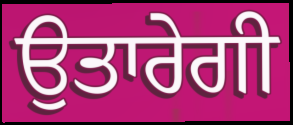
ਉਤਾਰੇਗੀ